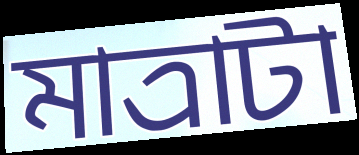
মাত্রাটা